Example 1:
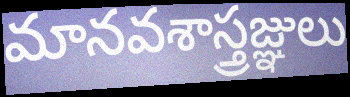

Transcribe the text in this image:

మానవశాస్త్రజ్ఞులు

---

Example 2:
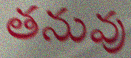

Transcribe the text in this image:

తనువు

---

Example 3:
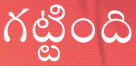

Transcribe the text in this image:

గట్టింది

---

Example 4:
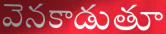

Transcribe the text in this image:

వెనకాడుతూ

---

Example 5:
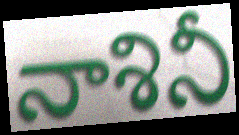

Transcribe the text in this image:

నాశినీ